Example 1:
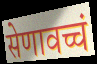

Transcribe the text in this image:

सेणावच्चं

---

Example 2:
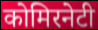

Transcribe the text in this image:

कोमिरनेटी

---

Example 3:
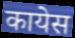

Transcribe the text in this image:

कायेस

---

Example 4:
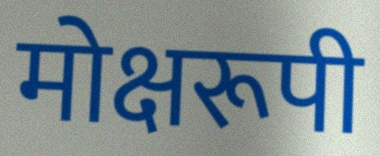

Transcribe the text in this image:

मोक्षरूपी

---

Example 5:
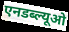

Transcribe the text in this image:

एनडब्ल्यूओ